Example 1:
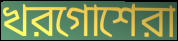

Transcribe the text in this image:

খরগোশেরা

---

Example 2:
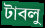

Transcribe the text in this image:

টাবলু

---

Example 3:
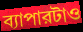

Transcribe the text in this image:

ব্যাপারটাও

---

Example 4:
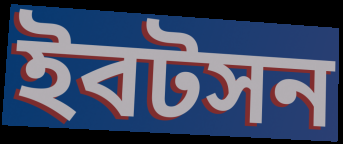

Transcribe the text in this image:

ইবটসন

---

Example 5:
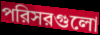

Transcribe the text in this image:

পরিসরগুলো